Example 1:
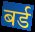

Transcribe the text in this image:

बर्ड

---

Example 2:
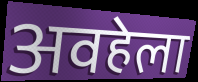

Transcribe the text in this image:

अवहेला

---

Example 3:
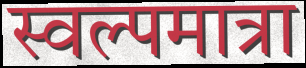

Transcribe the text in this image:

स्वल्पमात्रा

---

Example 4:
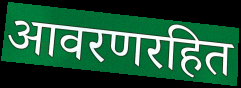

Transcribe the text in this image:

आवरणरहित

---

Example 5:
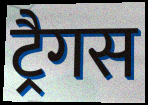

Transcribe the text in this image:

ट्रैगस